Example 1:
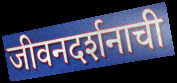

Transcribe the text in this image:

जीवनदर्शनाची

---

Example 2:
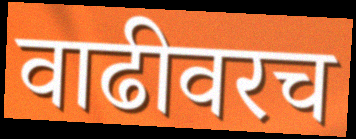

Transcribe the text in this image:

वाढीवरच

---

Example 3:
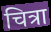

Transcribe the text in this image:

चित्रा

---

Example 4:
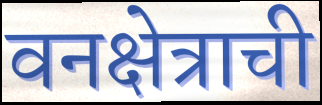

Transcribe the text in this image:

वनक्षेत्राची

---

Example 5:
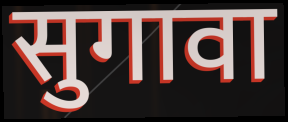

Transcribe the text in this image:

सुगावा